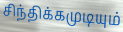
சிந்திக்கமுடியும்